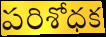
పరిశోధక